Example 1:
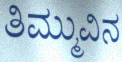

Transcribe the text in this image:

ತಿಮ್ಮುವಿನ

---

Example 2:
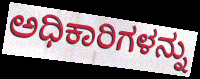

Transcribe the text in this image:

ಅಧಿಕಾರಿಗಳನ್ನು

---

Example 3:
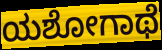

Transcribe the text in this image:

ಯಶೋಗಾಥೆ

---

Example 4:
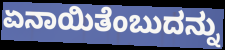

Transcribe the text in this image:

ಏನಾಯಿತೆಂಬುದನ್ನು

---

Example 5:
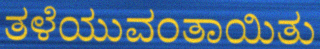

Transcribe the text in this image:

ತಳೆಯುವಂತಾಯಿತು